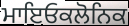
ਮਾਇਓਕਲੋਨਿਕ